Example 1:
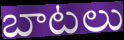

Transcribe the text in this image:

బాటలు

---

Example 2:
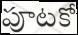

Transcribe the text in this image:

పూటకో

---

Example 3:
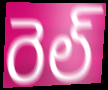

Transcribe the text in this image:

రెల్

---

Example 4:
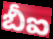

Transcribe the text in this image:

బీఐ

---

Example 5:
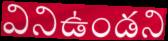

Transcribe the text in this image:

వినిఉండని